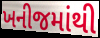
ખનીજમાંથી